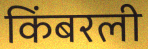
किंबरली